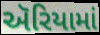
ઍરિયામાં